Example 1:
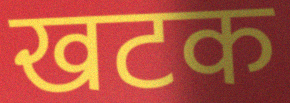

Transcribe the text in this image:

खटक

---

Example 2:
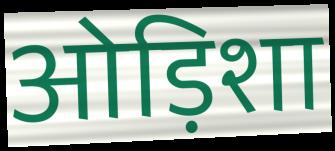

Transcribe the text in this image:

ओड़िशा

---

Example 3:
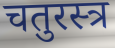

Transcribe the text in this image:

चतुरस्त्र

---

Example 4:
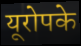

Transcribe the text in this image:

यूरोपके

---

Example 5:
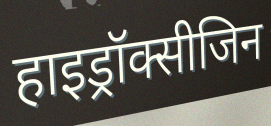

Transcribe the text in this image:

हाइड्रॉक्सीजिन